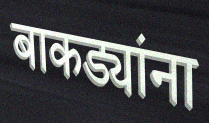
बाकड्यांना